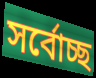
সৰ্বোচ্ছ